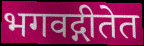
भगवद्गीतेत